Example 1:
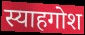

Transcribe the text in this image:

स्याहगोश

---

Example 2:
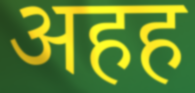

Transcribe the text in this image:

अहह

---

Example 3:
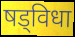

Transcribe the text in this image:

षड्विधा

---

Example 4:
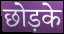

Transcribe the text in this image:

छोड़के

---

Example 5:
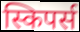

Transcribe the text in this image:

स्किपर्स